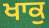
ਖਾਕੁ